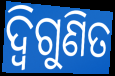
ଦ୍ଵିଗୁଣିତ